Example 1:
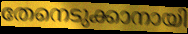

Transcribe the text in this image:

തേനെടുക്കാനായി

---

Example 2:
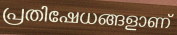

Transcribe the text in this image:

പ്രതിഷേധങ്ങളാണ്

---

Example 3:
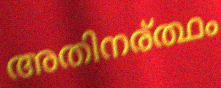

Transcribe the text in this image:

അതിനര്ത്ഥം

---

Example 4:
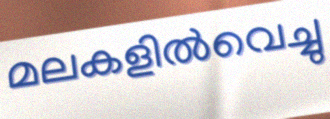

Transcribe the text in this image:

മലകളിൽവെച്ചു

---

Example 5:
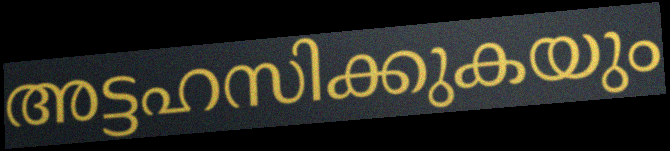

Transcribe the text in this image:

അട്ടഹസിക്കുകയും